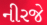
નીરજે